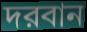
দরবান